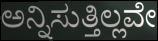
ಅನ್ನಿಸುತ್ತಿಲ್ಲವೇ